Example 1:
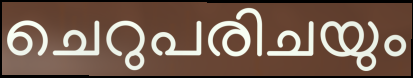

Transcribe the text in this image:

ചെറുപരിചയും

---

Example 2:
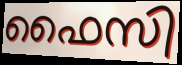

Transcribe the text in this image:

ഫൈസി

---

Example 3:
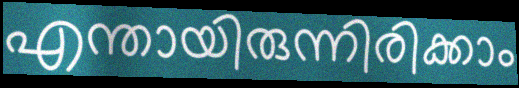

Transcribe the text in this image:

എന്തായിരുന്നിരിക്കാം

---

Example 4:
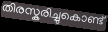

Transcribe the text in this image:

തിരസ്കരിച്ചുകൊണ്ട്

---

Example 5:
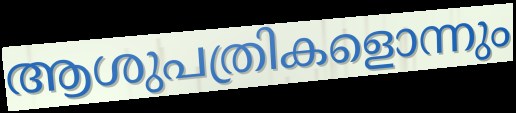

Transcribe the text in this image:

ആശുപത്രികളൊന്നും